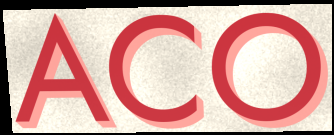
ACO